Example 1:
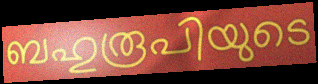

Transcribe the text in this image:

ബഹുരൂപിയുടെ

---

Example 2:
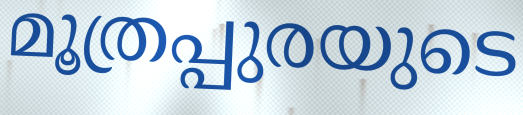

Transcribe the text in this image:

മൂത്രപ്പുരയുടെ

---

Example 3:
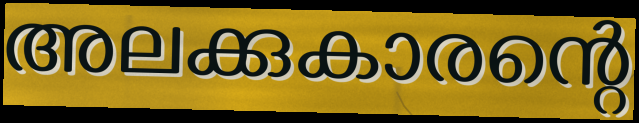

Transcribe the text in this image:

അലക്കുകാരന്റെ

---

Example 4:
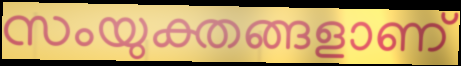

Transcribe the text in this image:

സംയുക്തങ്ങളാണ്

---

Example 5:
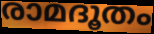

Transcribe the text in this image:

രാമദൂതം